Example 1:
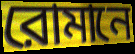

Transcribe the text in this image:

রোমানে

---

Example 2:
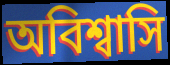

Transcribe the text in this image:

অবিশ্বাসি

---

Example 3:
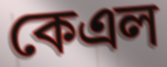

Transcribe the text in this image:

কেএল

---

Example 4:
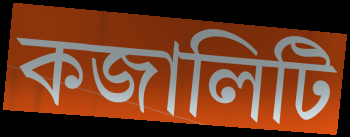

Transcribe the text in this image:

কজালিটি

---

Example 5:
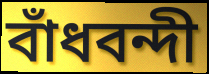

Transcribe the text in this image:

বাঁধবন্দী